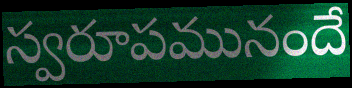
స్వరూపమునందే